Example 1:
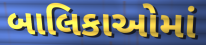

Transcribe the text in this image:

બાલિકાઓમાં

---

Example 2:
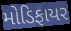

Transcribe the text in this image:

મોડિફાયર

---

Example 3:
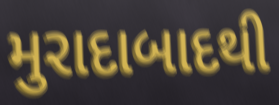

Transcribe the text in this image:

મુરાદાબાદથી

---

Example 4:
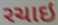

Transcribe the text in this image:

રચાઇ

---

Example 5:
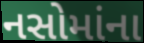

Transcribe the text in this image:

નસોમાંના